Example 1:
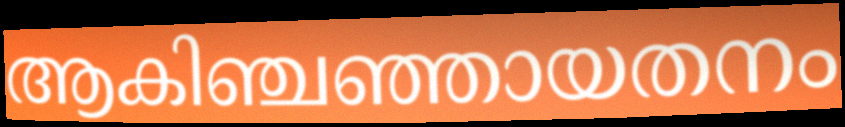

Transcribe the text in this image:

ആകിഞ്ചഞ്ഞായതനം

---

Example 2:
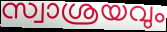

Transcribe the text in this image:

സ്വാശ്രയവും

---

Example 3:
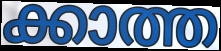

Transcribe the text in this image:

ക്കാത്ത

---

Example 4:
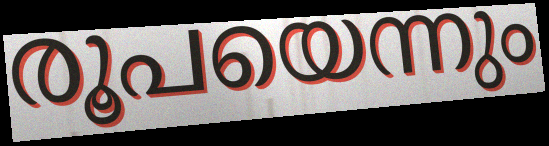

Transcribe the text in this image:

രൂപയെന്നും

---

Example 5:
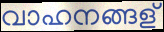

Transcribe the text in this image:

വാഹനങ്ങള്